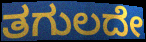
ತಗುಲದೇ